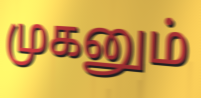
முகனும்